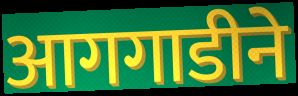
आगगाडीने